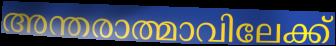
അന്തരാത്മാവിലേക്ക്